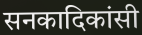
सनकादिकांसी